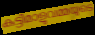
കുട്ടിമാളുവമ്മയുടെ